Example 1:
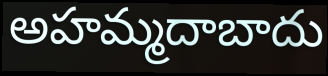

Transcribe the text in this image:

అహమ్మదాబాదు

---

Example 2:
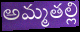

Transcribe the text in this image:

అమ్మతల్లి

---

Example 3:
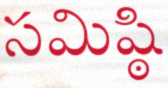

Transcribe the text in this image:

సమిష్ఠి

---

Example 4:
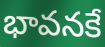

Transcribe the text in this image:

భావనకే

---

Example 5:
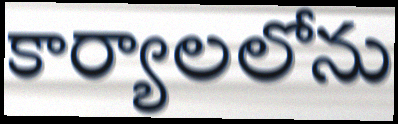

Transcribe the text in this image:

కార్యాలలోను